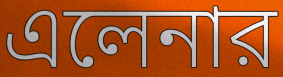
এলেনার